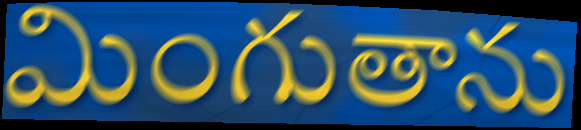
మింగుతాను